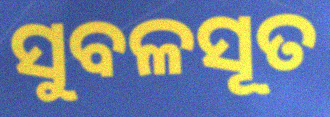
ସୁବଳସୂତ